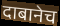
दाबानेच